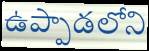
ఉప్పాడలోని